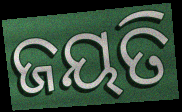
ଜୟତି